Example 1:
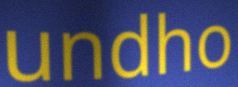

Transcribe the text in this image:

undho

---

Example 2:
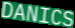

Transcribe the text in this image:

DANICS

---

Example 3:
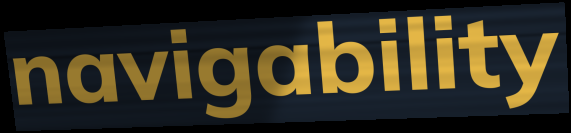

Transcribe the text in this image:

navigability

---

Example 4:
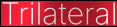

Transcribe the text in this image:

Trilateral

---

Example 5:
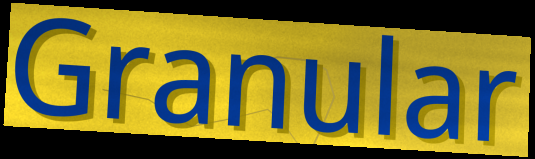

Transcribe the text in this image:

Granular